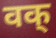
वक्